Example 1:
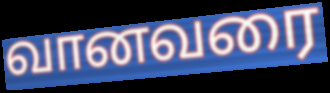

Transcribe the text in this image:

வானவரை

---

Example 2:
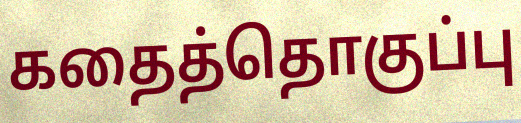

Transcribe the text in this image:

கதைத்தொகுப்பு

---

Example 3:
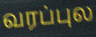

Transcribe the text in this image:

வரப்புல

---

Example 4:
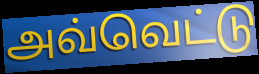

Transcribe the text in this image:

அவ்வெட்டு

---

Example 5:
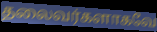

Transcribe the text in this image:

தலைவர்களாகவே